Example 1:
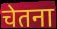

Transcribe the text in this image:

चेतना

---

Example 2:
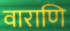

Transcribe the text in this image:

वाराणि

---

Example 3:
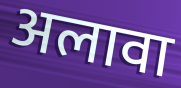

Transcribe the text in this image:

अलावा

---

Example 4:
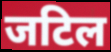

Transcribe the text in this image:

जटिल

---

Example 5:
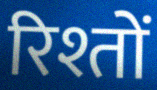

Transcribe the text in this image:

रिश्तों